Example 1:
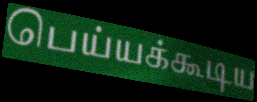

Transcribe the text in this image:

பெய்யக்கூடிய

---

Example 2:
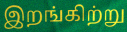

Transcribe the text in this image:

இறங்கிற்று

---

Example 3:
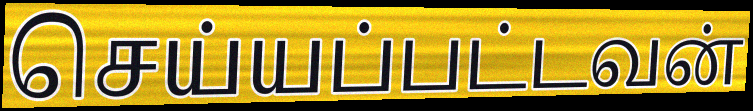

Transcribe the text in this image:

செய்யப்பட்டவன்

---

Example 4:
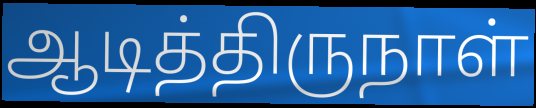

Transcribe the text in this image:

ஆடித்திருநாள்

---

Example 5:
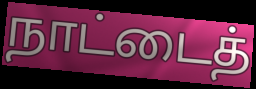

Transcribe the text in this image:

நாட்டைத்